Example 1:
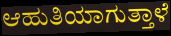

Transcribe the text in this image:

ಆಹುತಿಯಾಗುತ್ತಾಳೆ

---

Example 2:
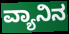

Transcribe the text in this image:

ವ್ಯಾನಿನ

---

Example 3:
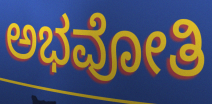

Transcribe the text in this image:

ಅಭವೋತಿ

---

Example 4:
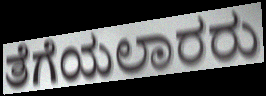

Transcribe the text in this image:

ತೆಗೆಯಲಾರರು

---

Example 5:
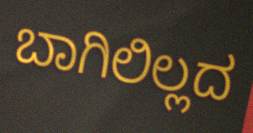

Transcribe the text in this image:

ಬಾಗಿಲಿಲ್ಲದ